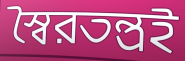
স্বৈরতন্ত্রই